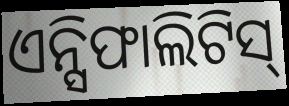
ଏନ୍ସିଫାଲିଟିସ୍